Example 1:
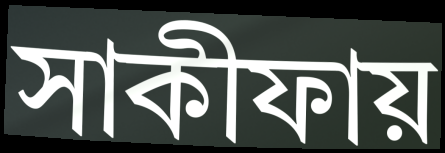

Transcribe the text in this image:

সাকীফায়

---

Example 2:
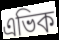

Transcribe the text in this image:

এভিক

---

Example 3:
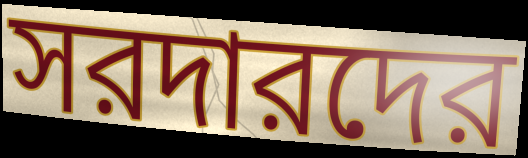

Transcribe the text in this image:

সরদারদের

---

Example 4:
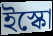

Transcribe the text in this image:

ইস্কো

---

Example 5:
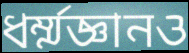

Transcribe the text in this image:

ধর্ম্মজ্ঞানও